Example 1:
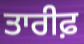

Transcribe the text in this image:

ਤਾਰੀਫ਼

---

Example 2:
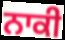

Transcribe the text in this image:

ਨਾਕੀ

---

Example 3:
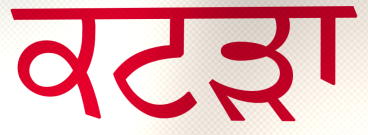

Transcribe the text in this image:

ਕਟੜਾ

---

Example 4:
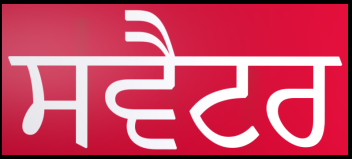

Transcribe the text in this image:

ਸਵੈਟਰ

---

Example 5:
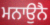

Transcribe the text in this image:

ਮਨਾਉਨੈ